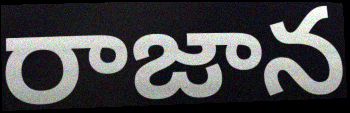
రాజాన